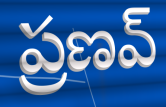
ప్రణవ్